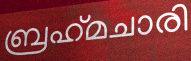
ബ്രഹ്‌മചാരി